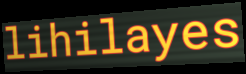
lihilayes